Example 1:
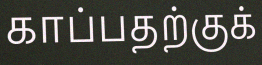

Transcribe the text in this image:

காப்பதற்குக்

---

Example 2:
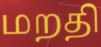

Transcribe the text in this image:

மறதி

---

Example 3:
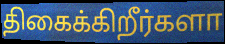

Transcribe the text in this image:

திகைக்கிறீர்களா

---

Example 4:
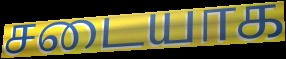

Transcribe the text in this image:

சடையாக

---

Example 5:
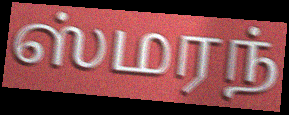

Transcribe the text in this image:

ஸ்மரந்